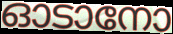
ഓടാനോ